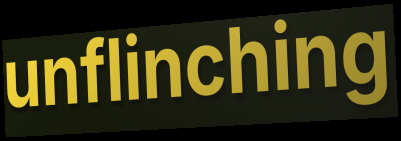
unflinching